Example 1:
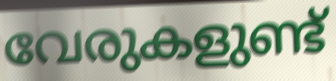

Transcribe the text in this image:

വേരുകളുണ്ട്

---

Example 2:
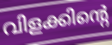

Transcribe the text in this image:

വിളക്കിന്റെ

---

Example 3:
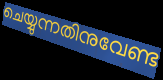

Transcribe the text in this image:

ചെയ്യുന്നതിനുവേണ്ട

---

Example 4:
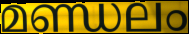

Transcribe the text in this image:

മണ്ഡലം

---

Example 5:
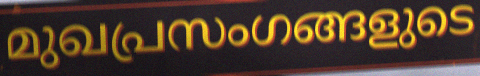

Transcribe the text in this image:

മുഖപ്രസംഗങ്ങളുടെ